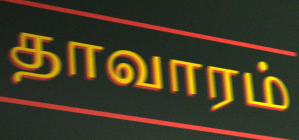
தாவாரம்